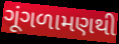
ગૂંગળામણથી